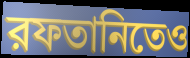
রফতানিতেও